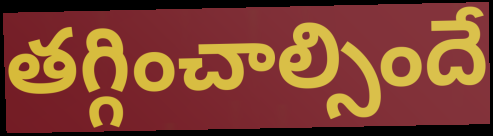
తగ్గించాల్సిందే